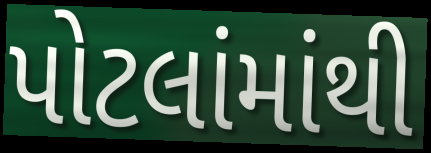
પોટલાંમાંથી